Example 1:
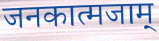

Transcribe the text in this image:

जनकात्मजाम्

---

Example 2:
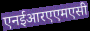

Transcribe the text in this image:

एनईआरएएमएसी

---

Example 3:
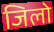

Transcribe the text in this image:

जिलो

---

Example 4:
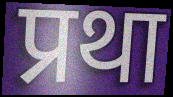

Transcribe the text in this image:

प्रथा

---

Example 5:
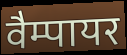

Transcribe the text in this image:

वैम्पायर